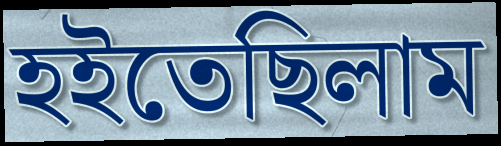
হইতেছিলাম